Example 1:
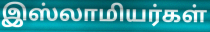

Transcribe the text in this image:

இஸ்லாமியர்கள்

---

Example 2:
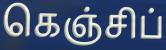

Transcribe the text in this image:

கெஞ்சிப்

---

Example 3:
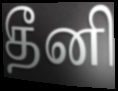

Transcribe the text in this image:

தீனி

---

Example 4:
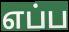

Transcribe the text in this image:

எப்ப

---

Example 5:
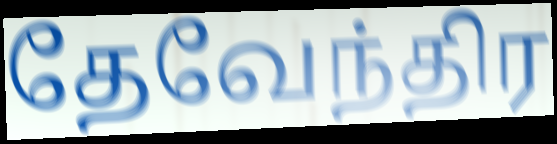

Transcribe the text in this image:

தேவேந்திர